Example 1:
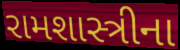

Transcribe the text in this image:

રામશાસ્ત્રીના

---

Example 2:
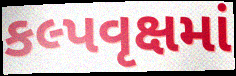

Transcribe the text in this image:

કલ્પવૃક્ષમાં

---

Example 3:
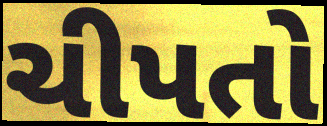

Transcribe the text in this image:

ચીપતો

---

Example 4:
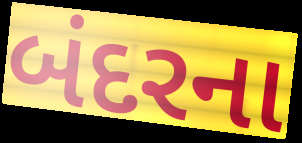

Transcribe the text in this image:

બંદરના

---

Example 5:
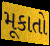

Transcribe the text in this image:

મૂકાતો